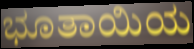
ಭೂತಾಯಿಯ